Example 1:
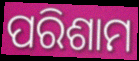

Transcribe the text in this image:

ପରିଶାମ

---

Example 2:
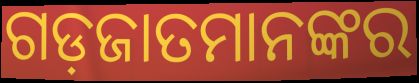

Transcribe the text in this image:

ଗଡ଼ଜାତମାନଙ୍କର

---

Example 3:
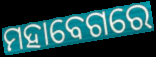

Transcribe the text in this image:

ମହାବେଗରେ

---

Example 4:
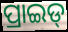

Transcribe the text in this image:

ପ୍ରାଇଡ୍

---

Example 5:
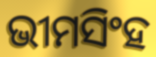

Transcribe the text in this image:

ଭୀମସିଂହ